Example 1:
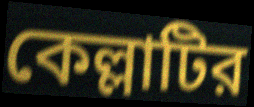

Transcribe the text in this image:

কেল্লাটির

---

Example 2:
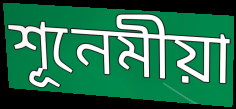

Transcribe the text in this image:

শূনেমীয়া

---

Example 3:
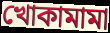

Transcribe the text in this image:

খোকামামা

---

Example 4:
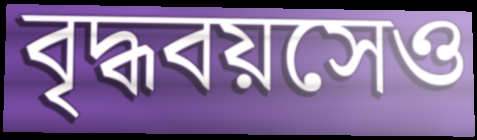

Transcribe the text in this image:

বৃদ্ধবয়সেও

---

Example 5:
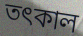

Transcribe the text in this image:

তৎকাল